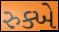
રુક્ખે